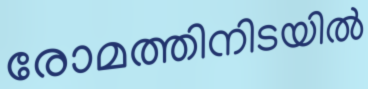
രോമത്തിനിടയിൽ